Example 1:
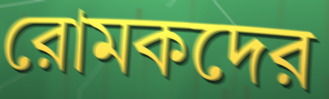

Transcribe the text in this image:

রোমকদের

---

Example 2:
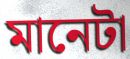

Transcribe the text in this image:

মানেটা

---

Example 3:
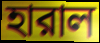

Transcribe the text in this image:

হারাল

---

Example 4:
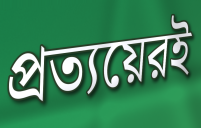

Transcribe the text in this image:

প্রত্যয়েরই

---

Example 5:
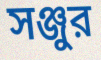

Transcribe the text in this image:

সঞ্জুর